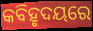
କବିହୃଦୟରେ